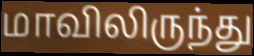
மாவிலிருந்து